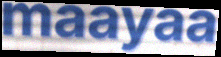
maayaa